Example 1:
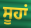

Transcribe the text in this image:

ਸੂਹਾਂ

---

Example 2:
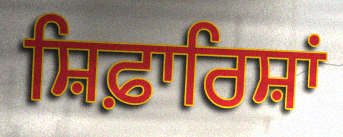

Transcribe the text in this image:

ਸ਼ਿਫ਼ਾਰਿਸ਼ਾਂ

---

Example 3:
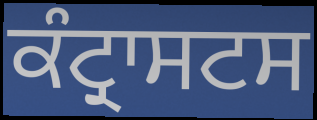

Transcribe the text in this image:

ਕੰਟ੍ਰਾਸਟਸ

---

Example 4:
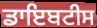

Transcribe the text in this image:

ਡਾਇਬਟੀਸ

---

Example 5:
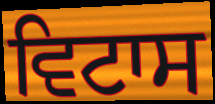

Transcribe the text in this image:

ਵਿਟਾਸ